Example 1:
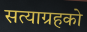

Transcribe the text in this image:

सत्याग्रहको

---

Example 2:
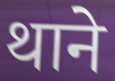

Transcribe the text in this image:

थाने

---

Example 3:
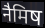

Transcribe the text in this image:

नैमिष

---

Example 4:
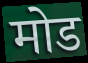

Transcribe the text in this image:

मोड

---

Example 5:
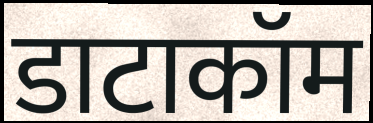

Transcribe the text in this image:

डाटाकॉम